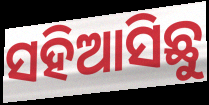
ସହିଆସିଛୁ